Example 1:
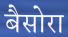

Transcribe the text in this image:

बैसोरा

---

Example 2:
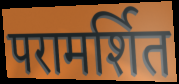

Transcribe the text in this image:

परामर्शित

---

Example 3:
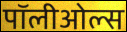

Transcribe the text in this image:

पॉलीओल्स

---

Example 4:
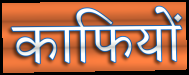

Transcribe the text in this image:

काफियों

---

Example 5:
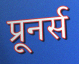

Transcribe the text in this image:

प्रूनर्स